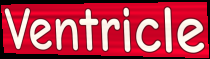
Ventricle